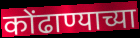
कोंढाण्याच्या